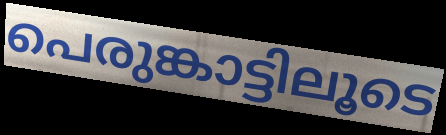
പെരുങ്കാട്ടിലൂടെ